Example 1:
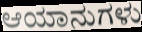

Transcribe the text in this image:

ಆಯಾನುಗಳು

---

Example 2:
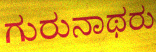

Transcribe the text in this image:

ಗುರುನಾಥರು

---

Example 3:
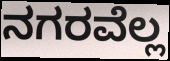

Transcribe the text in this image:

ನಗರವೆಲ್ಲ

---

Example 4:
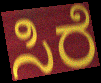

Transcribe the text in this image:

ಸಿರೆ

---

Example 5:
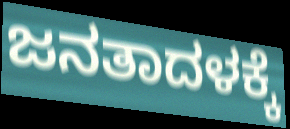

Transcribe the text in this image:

ಜನತಾದಳಕ್ಕೆ